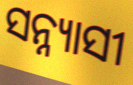
ସନ୍ନ୍ୟାସୀ